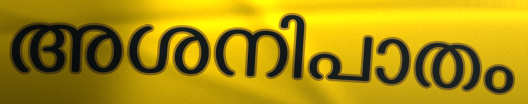
അശനിപാതം